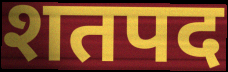
शतपद